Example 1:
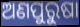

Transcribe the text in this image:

ଅଣପୁରୁଷା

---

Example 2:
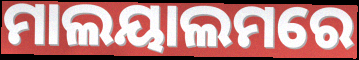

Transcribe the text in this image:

ମାଲୟାଲମରେ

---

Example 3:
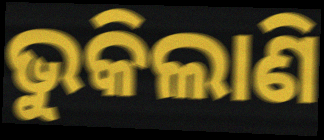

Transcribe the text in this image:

ଭୁକିଲାଣି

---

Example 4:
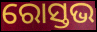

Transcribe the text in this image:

ରୋସ୍ତଭ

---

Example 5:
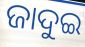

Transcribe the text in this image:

ଜାଦୁଇ